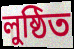
লুষ্ঠিত